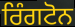
ਰਿੰਗਟੋਨ